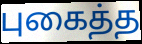
புகைத்த